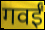
गवईं